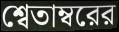
শ্বেতাম্বরের